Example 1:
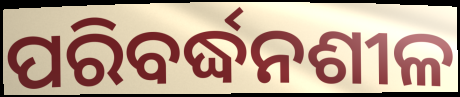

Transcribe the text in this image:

ପରିବର୍ଦ୍ଧନଶୀଳ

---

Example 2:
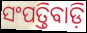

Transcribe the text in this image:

ସଂପତ୍ତିବାଡ଼ି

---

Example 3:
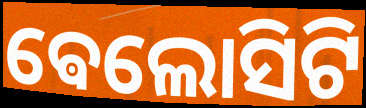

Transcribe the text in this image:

ଵେଲୋସିଟି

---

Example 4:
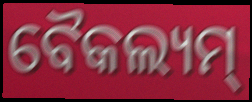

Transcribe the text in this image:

ବୈକଲ୍ୟମ୍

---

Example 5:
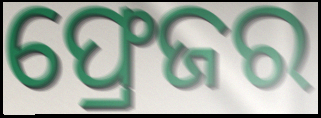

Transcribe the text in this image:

ଫ୍ରେଜର